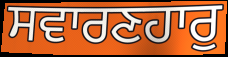
ਸਵਾਰਣਹਾਰੁ